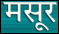
मसूर